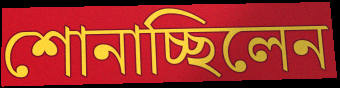
শোনাচ্ছিলেন